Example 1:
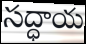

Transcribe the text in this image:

సద్ధాయ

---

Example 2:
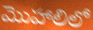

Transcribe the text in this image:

మొహాలిలో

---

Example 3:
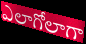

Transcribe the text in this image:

ఎలాగోలాగా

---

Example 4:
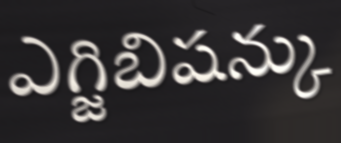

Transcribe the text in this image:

ఎగ్జిబిషన్కు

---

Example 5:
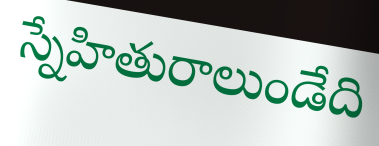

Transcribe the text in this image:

స్నేహితురాలుండేది